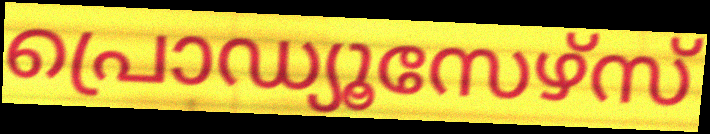
പ്രൊഡ്യൂസേഴ്സ്